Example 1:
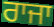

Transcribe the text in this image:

ਰਾਜਾ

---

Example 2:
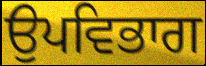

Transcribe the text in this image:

ਉਪਵਿਭਾਗ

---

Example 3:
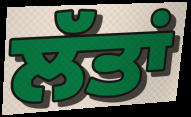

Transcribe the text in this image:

ਲੱਤਾਂ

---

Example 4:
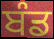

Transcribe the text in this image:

ਬੰਡ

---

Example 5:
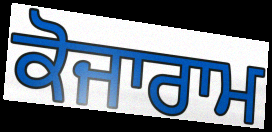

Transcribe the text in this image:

ਕੋਜਾਰਾਮ